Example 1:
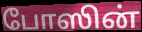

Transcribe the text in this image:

போஸின்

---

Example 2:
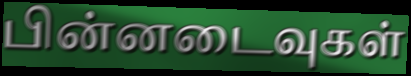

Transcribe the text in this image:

பின்னடைவுகள்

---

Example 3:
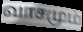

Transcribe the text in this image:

வாசமும்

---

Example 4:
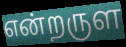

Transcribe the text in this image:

என்றருள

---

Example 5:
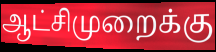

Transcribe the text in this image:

ஆட்சிமுறைக்கு